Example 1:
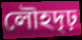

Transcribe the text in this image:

লৌহদৃঢ়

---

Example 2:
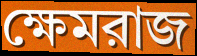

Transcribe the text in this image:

ক্ষেমরাজ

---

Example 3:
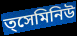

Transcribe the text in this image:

ত্সেমিনিউ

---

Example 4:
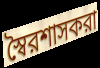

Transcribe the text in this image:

স্বৈরশাসকরা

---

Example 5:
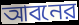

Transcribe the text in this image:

আবনের